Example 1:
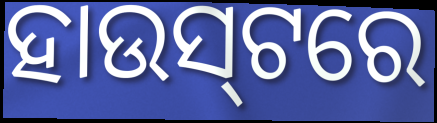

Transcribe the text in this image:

ହାଉସ୍‌ଟରେ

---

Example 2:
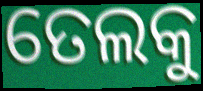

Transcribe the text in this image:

ତେଲକୁ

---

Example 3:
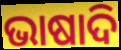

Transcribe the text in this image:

ଭାଷାଦି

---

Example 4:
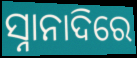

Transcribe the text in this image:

ସ୍ନାନାଦିରେ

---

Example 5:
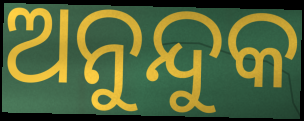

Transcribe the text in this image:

ଅନୁନ୍ଦୁକ